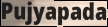
Pujyapada